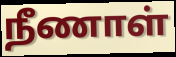
நீணாள்